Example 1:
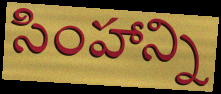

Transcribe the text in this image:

సింహాన్ని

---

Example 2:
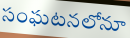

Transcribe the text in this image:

సంఘటనలోనూ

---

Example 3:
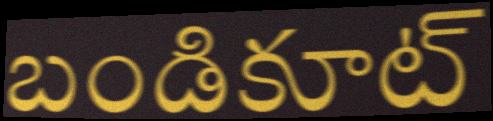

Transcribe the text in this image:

బండికూట్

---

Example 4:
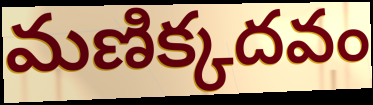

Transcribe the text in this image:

మణిక్కదవం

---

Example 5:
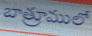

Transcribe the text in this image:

బాత్రూములో